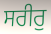
ਸਰੀਰੁ